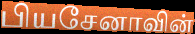
பியசேனாவின்